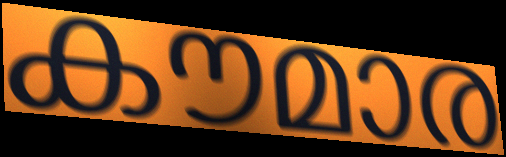
കൗമാര